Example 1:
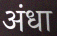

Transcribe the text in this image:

अंधा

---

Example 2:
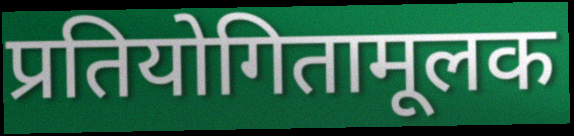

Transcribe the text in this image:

प्रतियोगितामूलक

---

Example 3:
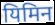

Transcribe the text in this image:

यिमिन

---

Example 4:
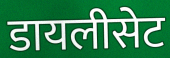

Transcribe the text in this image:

डायलीसेट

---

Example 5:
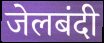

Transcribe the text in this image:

जेलबंदी